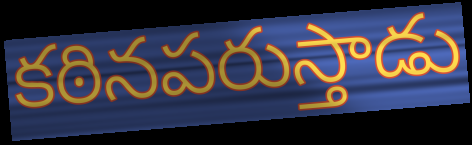
కఠినపరుస్తాడు